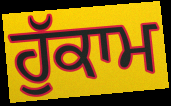
ਹੁੱਕਾਮ